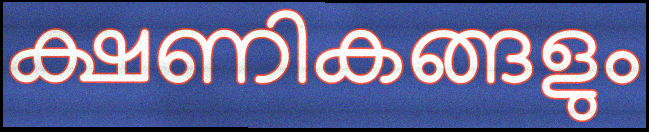
ക്ഷണികങ്ങളും